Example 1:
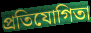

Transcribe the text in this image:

প্রতিযোগিতা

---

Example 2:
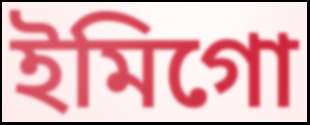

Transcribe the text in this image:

ইমিগো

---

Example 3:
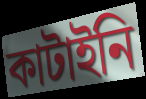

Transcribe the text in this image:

কাটাইনি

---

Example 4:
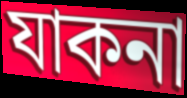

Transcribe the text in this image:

যাকনা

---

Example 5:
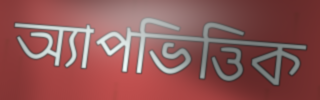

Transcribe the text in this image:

অ্যাপভিত্তিক